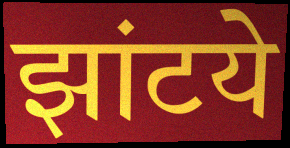
झांटये